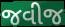
જવીજ